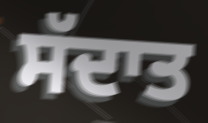
ਸੱਦਾਤ